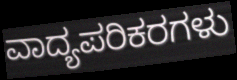
ವಾದ್ಯಪರಿಕರಗಳು